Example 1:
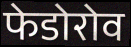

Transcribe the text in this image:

फेडोरोव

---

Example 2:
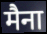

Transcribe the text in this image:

मैना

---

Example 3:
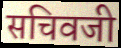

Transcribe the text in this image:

सचिवजी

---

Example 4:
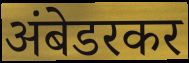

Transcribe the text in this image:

अंबेडरकर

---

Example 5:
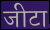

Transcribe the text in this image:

जीटा